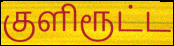
குளிரூட்ட